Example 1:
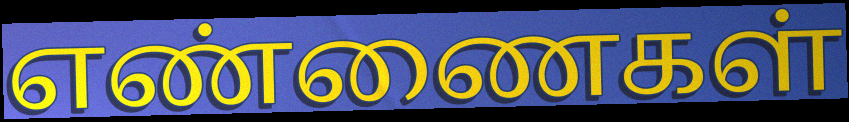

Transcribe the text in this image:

எண்ணைகள்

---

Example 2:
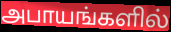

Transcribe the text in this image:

அபாயங்களில்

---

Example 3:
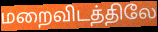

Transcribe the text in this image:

மறைவிடத்திலே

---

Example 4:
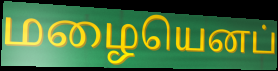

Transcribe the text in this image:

மழையெனப்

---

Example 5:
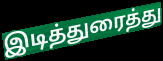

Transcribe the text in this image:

இடித்துரைத்து